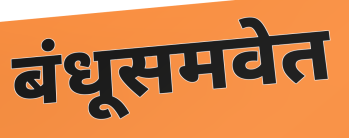
बंधूसमवेत